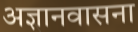
अज्ञानवासना